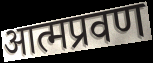
आत्मप्रवण